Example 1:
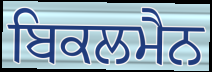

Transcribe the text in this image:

ਬਿਕਲਮੈਨ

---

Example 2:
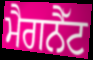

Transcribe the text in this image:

ਮੈਗਨੈੱਟ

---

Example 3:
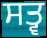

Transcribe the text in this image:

ਸਤ੍ਵ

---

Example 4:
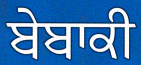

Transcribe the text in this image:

ਬੇਬਾਕੀ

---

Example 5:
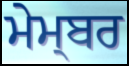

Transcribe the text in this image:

ਮੇਮ੍ਬਰ